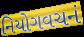
નિયોગવચનં